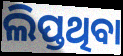
ଲିପ୍ତଥିବା